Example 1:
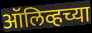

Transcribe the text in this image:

ऑलिव्हच्या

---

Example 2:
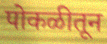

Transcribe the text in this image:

पोकळीतून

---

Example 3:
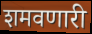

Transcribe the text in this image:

शमवणारी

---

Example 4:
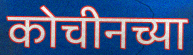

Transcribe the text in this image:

कोचीनच्या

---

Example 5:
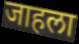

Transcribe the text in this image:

जाहला